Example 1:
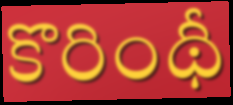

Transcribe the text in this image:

కొరింథీ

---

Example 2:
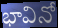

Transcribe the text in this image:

భావినో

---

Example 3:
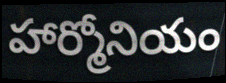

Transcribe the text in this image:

హార్మోనియం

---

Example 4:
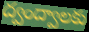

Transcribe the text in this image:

ద్వంద్వాలకు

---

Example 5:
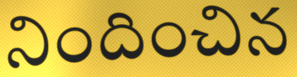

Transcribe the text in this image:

నిందించిన